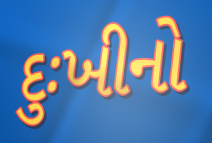
દુઃખીનો